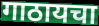
गाठायचा